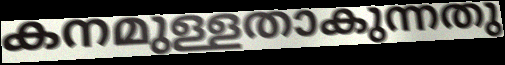
കനമുള്ളതാകുന്നതു